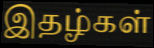
இதழ்கள்